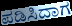
ಪಡಿಸಿದಾಗ